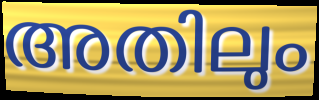
അതിലും